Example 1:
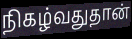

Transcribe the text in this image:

நிகழ்வதுதான்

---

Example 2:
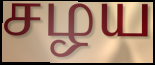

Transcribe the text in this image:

சழய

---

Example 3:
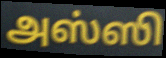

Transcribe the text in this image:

அஸ்ஸி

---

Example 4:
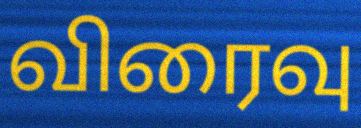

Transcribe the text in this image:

விரைவு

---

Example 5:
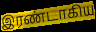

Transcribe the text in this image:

இரண்டாகிய